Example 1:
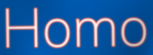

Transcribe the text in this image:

Homo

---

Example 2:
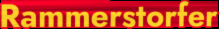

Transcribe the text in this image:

Rammerstorfer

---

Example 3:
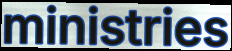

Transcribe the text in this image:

ministries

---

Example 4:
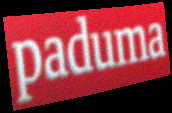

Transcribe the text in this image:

paduma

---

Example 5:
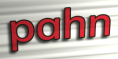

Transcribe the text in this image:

pahn